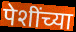
पेशींच्या